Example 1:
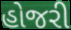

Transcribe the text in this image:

હોજરી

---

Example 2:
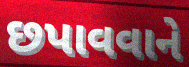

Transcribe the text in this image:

છપાવવાને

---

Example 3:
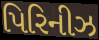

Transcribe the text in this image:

પિરિનીઝ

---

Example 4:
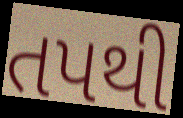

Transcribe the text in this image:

તપથી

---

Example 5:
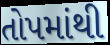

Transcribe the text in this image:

તોપમાંથી